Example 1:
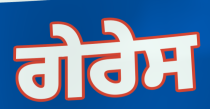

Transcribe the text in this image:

ਗੇਰੇਸ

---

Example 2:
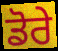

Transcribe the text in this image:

ਡੋਰੇ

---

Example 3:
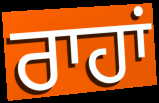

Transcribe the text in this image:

ਰਾਹਾਂ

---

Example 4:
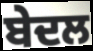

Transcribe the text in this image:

ਬੇਦਲ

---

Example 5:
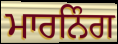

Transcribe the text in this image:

ਮਾਰਨਿੰਗ